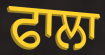
ਫਾਲਾ